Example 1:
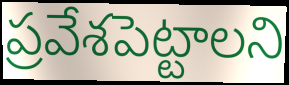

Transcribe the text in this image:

ప్రవేశపెట్టాలని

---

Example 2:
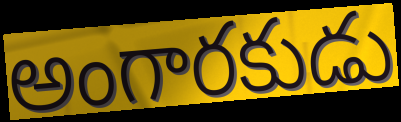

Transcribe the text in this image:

అంగారకుడు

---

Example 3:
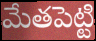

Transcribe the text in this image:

మేతపెట్టి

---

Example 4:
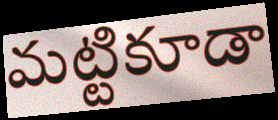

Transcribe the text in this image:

మట్టికూడా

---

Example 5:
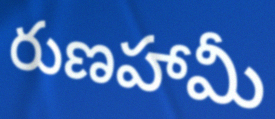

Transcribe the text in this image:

రుణహామీ